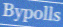
Bypolls